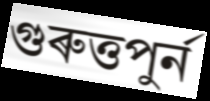
গুৰুত্তপুৰ্ন